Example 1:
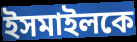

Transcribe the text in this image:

ইসমাইলকে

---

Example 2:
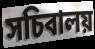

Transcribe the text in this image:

সচিবালয়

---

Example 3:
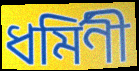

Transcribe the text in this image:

ধর্মিণী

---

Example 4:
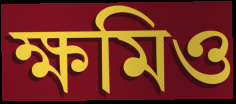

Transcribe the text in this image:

ক্ষমিও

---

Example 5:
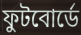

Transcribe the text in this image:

ফুটবোর্ডে